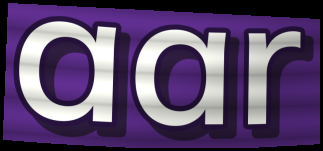
aar